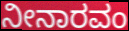
ನೀನಾರವಂ